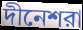
দীনেশরা